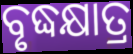
ବୃଦ୍ଧକ୍ଷାତ୍ର